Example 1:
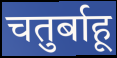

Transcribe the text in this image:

चतुर्बाहू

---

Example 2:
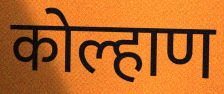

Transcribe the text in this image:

कोल्हाण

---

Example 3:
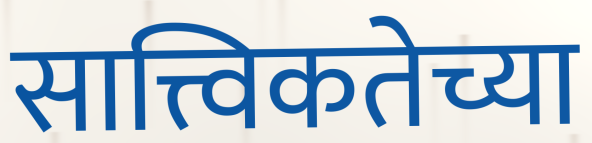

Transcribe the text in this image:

सात्त्विकतेच्या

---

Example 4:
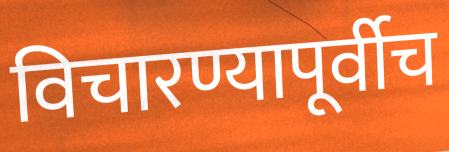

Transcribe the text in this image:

विचारण्यापूर्वीच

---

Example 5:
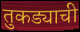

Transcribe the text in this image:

तुकड्याची